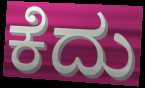
ಕೆದು